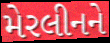
મેરલીનને